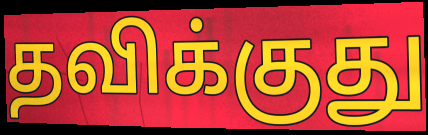
தவிக்குது